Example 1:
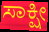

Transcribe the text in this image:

ಸಾಕ್ಷೀ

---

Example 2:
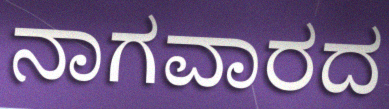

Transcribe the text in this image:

ನಾಗವಾರದ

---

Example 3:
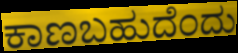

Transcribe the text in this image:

ಕಾಣಬಹುದೆಂದು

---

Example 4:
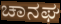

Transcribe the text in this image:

ಚಾನಘ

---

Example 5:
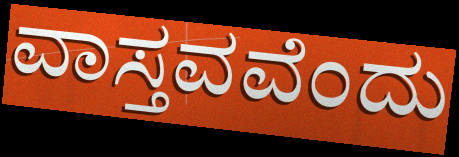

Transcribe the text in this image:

ವಾಸ್ತವವೆಂದು